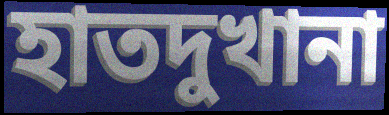
হাতদুখানা